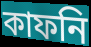
কাফনি